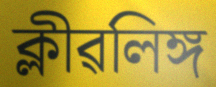
ক্লীৱলিঙ্গ